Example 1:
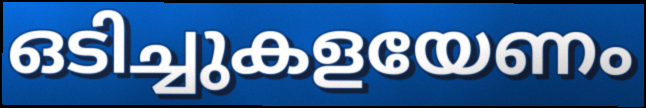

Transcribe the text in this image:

ഒടിച്ചുകളയേണം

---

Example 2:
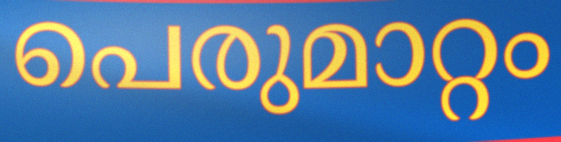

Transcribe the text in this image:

പെരുമാറ്റം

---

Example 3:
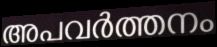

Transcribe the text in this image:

അപവർത്തനം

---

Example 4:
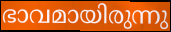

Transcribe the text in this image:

ഭാവമായിരുന്നു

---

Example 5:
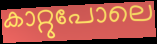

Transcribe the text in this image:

കാറ്റുപോലെ